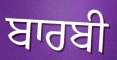
ਬਾਰਬੀ